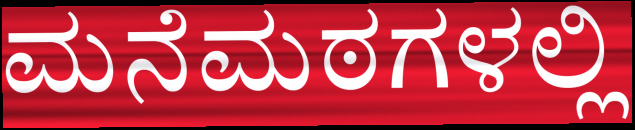
ಮನೆಮಠಗಳಲ್ಲಿ